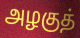
அழகுத்